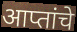
आप्तांचे